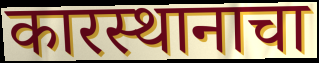
कारस्थानाचा